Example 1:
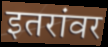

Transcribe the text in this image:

इतरांवर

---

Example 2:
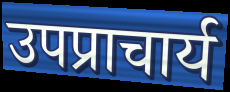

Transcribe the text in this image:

उपप्राचार्य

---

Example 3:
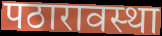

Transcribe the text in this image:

पठारावस्था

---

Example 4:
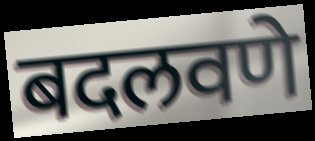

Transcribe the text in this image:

बदलवणे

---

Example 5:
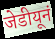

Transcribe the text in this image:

जेडीयूनं